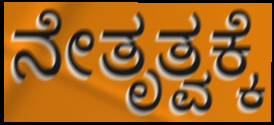
ನೇತೃತ್ವಕ್ಕೆ